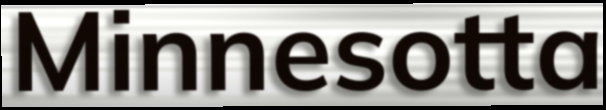
Minnesotta